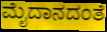
ಮೈದಾನದಂತೆ